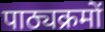
पाठ्यक्रमों